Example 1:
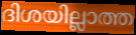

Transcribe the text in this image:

ദിശയില്ലാത്ത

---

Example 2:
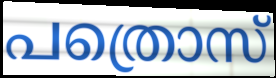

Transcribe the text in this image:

പത്രൊസ്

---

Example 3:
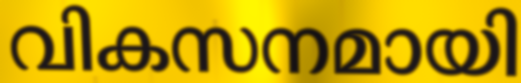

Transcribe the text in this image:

വികസനമായി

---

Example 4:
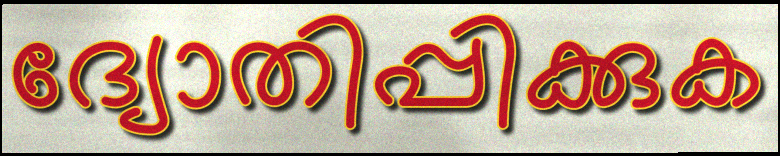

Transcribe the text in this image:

ദ്യോതിപ്പിക്കുക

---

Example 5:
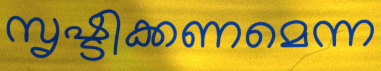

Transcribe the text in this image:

സൃഷ്ടിക്കണമെന്ന